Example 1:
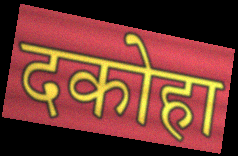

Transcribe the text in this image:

दकोहा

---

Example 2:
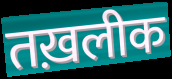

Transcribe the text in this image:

तख़लीक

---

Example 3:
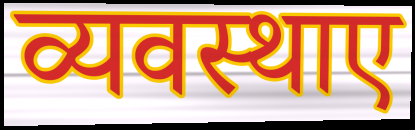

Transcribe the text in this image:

व्यवस्थाए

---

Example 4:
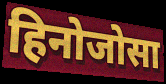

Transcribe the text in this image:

हिनोजोसा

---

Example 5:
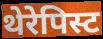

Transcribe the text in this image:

थेरेपिस्ट